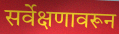
सर्वेक्षणावरून